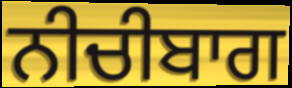
ਨੀਚੀਬਾਗ